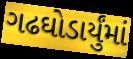
ગઢઘોડાર્યુંમાં